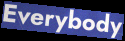
Everybody